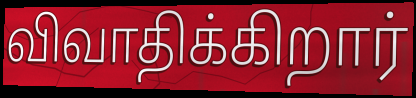
விவாதிக்கிறார்